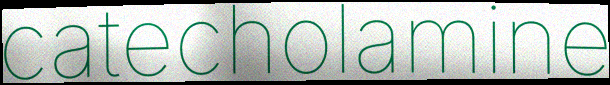
catecholamine